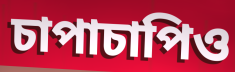
চাপাচাপিও